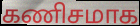
கணிசமாக